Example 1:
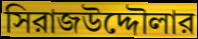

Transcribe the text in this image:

সিরাজউদ্দৌলার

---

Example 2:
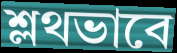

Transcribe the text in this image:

শ্লথভাবে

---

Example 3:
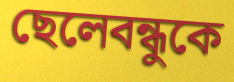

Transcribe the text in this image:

ছেলেবন্ধুকে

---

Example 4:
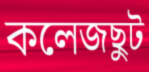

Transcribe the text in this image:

কলেজছুট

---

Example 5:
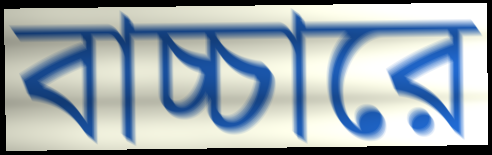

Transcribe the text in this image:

বাচ্চারে